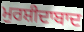
ਮੁਰਸ਼ੀਦਾਬਾਦ